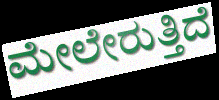
ಮೇಲೇರುತ್ತಿದೆ